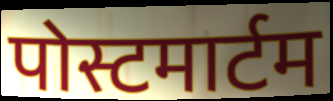
पोस्टमार्टम